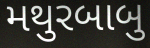
મથુરબાબુ